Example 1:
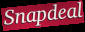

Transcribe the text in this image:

Snapdeal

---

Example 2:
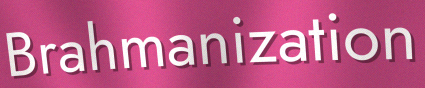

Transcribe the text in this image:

Brahmanization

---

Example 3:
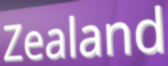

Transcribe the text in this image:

Zealand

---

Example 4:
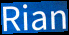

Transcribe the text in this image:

Rian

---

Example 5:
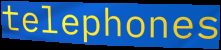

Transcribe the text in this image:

telephones